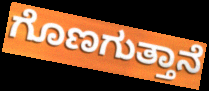
ಗೊಣಗುತ್ತಾನೆ